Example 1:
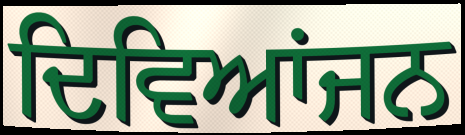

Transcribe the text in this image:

ਦਿਵਿਆਂਜਨ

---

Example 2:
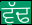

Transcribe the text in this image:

ਵੱਢ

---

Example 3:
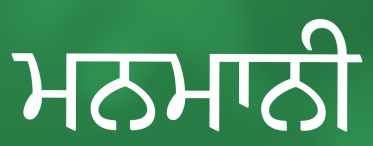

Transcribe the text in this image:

ਮਨਮਾਨੀ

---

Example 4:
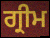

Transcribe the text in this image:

ਗ੍ਰੀਮ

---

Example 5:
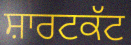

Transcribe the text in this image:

ਸ਼ਾਰਟਕੱਟ